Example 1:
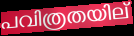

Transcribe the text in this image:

പവിത്രതയില്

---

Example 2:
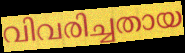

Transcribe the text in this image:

വിവരിച്ചതായ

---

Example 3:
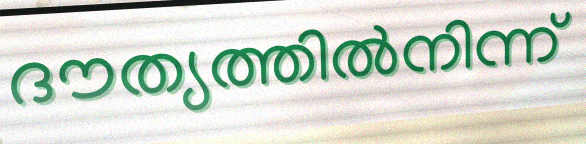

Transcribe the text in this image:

ദൗത്യത്തിൽനിന്ന്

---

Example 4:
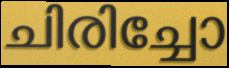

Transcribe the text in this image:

ചിരിച്ചോ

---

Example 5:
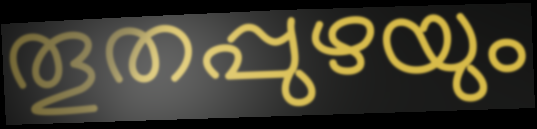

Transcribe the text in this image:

തൂതപ്പുഴയും